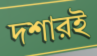
দশারই